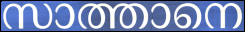
സാത്താനെ